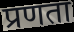
प्रणता